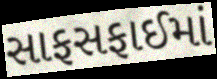
સાફસફાઈમાં